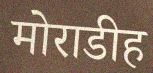
मोराडीह